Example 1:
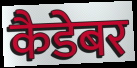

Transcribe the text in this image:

कैडेबर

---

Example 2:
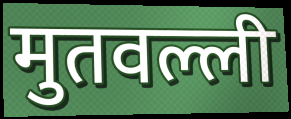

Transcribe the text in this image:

मुतवल्ली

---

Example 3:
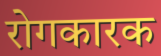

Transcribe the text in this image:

रोगकारक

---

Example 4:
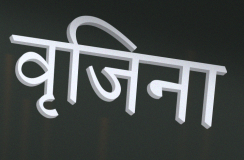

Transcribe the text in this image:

वृजिना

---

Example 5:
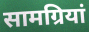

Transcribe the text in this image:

सामग्रियां